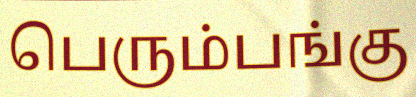
பெரும்பங்கு